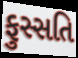
ફુસ્સતિ